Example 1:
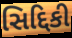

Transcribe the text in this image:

સિદ્દિકી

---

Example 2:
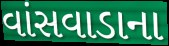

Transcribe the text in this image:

વાંસવાડાના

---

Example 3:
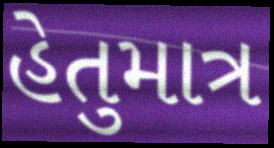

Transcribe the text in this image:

હેતુમાત્ર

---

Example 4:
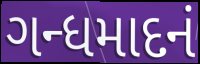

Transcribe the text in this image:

ગન્ધમાદનં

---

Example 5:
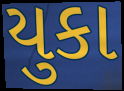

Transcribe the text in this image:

યુકા